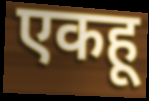
एकहू